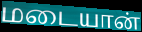
மடையான்